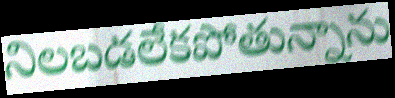
నిలబడలేకపోతున్నాను